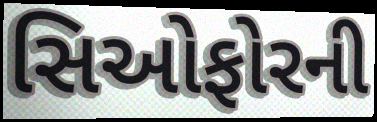
સિઓફોરની